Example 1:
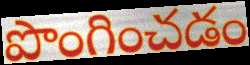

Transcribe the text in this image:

పొంగించడం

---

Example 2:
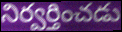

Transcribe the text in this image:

నిర్వర్తించడు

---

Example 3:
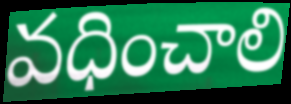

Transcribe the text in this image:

వధించాలి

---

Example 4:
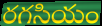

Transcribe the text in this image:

రగసియం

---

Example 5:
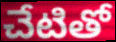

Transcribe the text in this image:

చేటితో